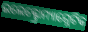
ଇଲେକ୍ଟ୍ରୋମ୍ୟାଗ୍ନେଟିକ